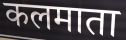
कलमाता